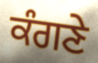
ਕੰਗਣੇ